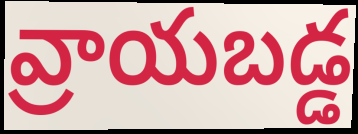
వ్రాయబడ్డ